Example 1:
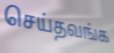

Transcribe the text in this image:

செய்தவங்க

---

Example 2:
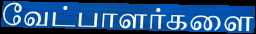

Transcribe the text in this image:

வேட்பாளர்களை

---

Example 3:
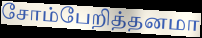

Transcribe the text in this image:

சோம்பேறித்தனமா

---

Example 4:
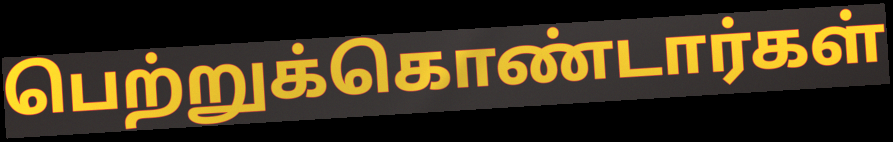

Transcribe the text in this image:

பெற்றுக்கொண்டார்கள்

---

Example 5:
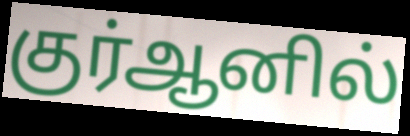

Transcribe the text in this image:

குர்ஆனில்